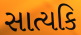
સાત્યકિ